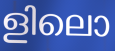
ളിലൊ